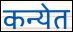
कन्येत